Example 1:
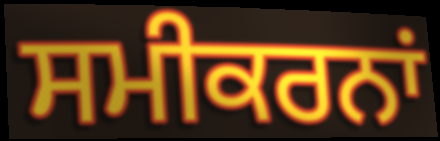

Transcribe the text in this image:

ਸਮੀਕਰਨਾਂ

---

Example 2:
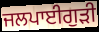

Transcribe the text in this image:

ਜਲਪਾਈਗੁਡ਼ੀ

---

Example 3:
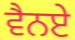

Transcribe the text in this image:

ਵੈਨਏ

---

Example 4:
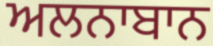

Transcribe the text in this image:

ਅਲਨਾਬਾਨ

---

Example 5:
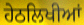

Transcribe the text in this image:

ਹੇਠਲਿਖੀਆਂ